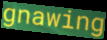
gnawing